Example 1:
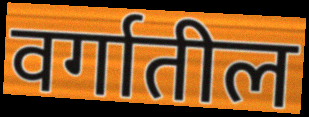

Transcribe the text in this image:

वर्गातील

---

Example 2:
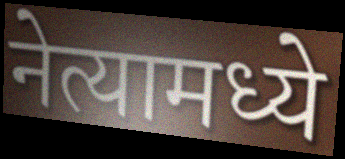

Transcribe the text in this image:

नेत्यामध्ये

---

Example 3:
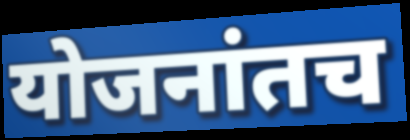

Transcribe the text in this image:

योजनांतच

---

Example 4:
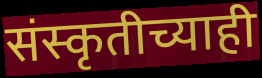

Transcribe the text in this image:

संस्कृतीच्याही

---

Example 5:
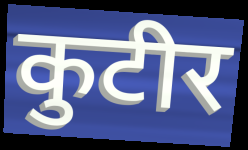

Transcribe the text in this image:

कुटीर